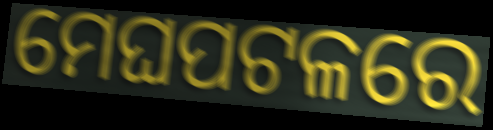
ମେଘପଟଳରେ